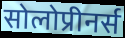
सोलोप्रीनर्स